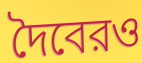
দৈবেরও